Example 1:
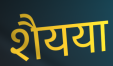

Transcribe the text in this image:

शैयया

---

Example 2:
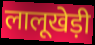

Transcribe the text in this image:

लालूखेड़ी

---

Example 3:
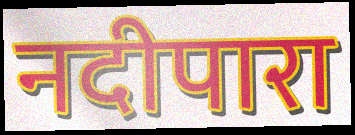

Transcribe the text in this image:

नदीपारा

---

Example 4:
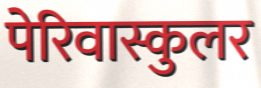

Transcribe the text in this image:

पेरिवास्कुलर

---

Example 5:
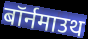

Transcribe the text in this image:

बॉर्नमाउथ